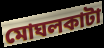
মোঘলকাটা